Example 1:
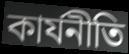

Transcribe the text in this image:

কার্যনীতি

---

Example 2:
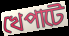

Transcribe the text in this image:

খেপাটে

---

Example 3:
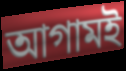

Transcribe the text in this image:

আগামই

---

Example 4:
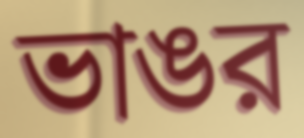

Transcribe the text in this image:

ভাঙর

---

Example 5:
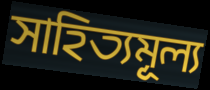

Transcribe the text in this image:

সাহিত্যমূল্য